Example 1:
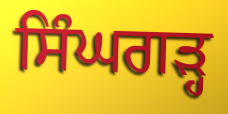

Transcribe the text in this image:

ਸਿੰਘਗੜ੍ਹ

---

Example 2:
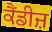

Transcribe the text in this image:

ਕੈਂਡੀਜ਼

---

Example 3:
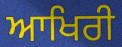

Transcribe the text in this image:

ਆਖਿਰੀ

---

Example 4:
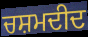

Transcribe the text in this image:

ਚਸ਼ਮਦੀਦ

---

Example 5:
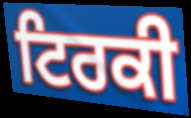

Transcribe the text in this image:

ਟਿਰਕੀ